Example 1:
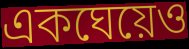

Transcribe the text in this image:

একঘেয়েও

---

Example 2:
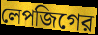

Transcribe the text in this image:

লেপজিগের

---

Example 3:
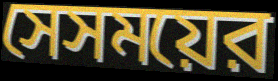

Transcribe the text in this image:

সেসময়ের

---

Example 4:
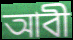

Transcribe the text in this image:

আবী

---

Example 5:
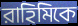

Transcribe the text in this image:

রাহিমিকে